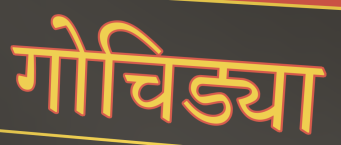
गोचिड्या